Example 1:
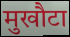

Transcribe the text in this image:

मुखौटा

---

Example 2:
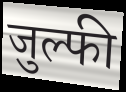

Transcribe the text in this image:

जुल्फी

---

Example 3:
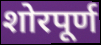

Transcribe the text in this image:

शोरपूर्ण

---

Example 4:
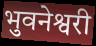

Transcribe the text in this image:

भुवनेश्वरी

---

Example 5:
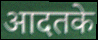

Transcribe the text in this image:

आदतके